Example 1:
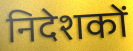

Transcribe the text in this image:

निदेशकों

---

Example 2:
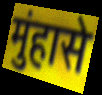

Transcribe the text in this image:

मुंहासे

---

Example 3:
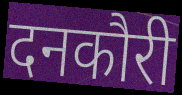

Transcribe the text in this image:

दनकौरी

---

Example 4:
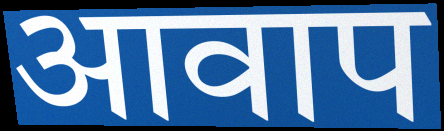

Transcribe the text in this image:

आवाप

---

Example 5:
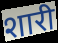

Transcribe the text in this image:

शारी